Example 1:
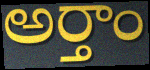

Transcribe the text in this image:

అర్తాం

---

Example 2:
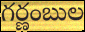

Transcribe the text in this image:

గర్ణంబుల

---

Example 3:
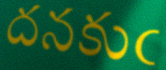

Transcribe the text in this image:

దనకుఁ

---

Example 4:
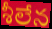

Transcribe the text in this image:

శీలేన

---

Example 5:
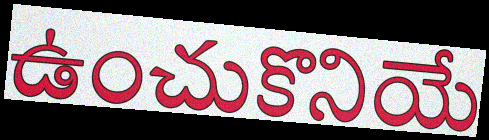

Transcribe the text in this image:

ఉంచుకొనియే